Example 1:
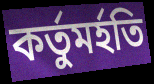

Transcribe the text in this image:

কর্তুমর্হতি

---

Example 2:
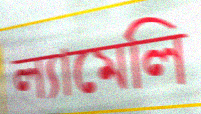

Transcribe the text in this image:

ল্যামেলি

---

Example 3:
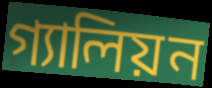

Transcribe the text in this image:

গ্যালিয়ন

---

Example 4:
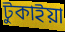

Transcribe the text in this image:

টুকাইয়া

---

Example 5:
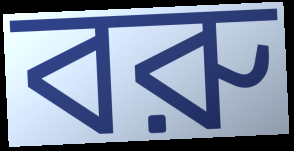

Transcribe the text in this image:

বরু